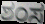
ಶಂಸ